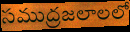
సముద్రజలాలలో